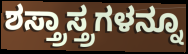
ಶಸ್ತ್ರಾಸ್ತ್ರಗಳನ್ನೂ